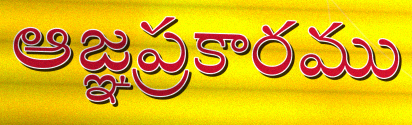
ఆజ్ఞప్రకారము